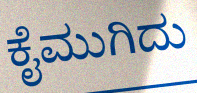
ಕೈಮುಗಿದು